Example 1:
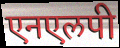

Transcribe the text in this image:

एनएलपी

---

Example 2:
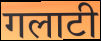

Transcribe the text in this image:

गलाटी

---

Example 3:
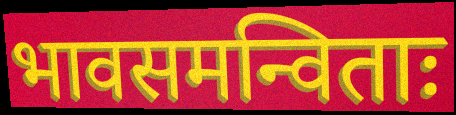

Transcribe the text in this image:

भावसमन्विताः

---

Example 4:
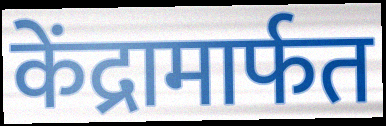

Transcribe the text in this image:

केंद्रामार्फत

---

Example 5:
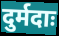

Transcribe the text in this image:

दुर्मदाः